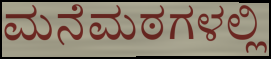
ಮನೆಮಠಗಳಲ್ಲಿ